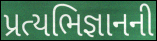
પ્રત્યભિજ્ઞાનની